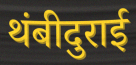
थंबीदुराई